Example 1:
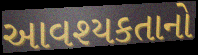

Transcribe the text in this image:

આવશ્યકતાનો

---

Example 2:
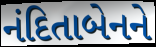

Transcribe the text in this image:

નંદિતાબેનને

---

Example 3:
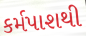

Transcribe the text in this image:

કર્મપાશથી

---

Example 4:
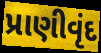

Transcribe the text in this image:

પ્રાણીવૃંદ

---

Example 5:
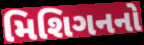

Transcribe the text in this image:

મિશિગનનો